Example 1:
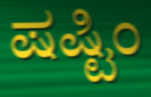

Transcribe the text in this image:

ಷಷ್ಟಿಂ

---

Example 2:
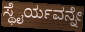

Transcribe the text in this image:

ಸ್ಥೈರ್ಯವನ್ನೇ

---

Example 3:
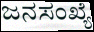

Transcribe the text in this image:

ಜನಸಂಖ್ಯೆ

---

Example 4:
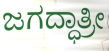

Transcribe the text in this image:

ಜಗದ್ಧಾತ್ರೀ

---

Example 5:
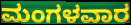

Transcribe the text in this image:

ಮಂಗಳವಾರ